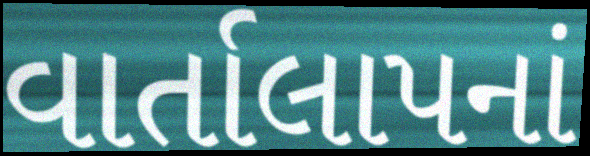
વાર્તાલાપનાં